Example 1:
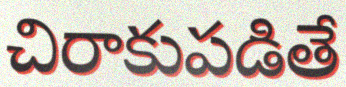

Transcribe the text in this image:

చిరాకుపడితే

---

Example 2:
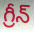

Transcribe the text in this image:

గ్రీన్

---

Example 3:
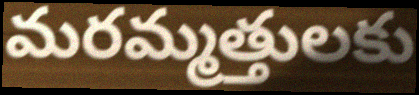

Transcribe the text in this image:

మరమ్మత్తులకు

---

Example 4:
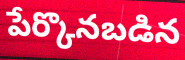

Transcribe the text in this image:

పేర్కొనబడిన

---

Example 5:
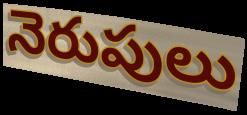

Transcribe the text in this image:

నెరుపులు